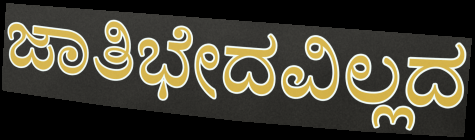
ಜಾತಿಭೇದವಿಲ್ಲದ